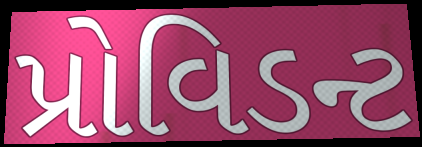
પ્રોવિડન્ટ